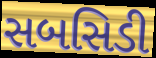
સબસિડી